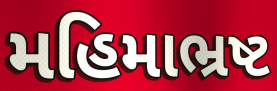
મહિમાભ્રષ્ટ